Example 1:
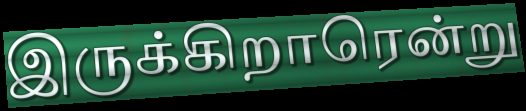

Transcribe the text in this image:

இருக்கிறாரென்று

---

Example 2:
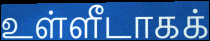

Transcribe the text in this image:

உள்ளீடாகக்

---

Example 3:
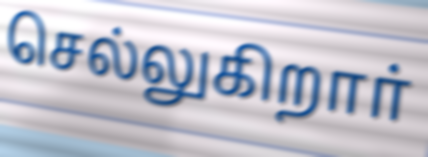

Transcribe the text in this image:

செல்லுகிறார்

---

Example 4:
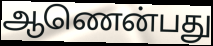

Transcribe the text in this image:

ஆணென்பது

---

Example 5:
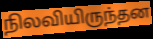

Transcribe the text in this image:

நிலவியிருந்தன